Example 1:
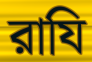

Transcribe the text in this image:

রাযি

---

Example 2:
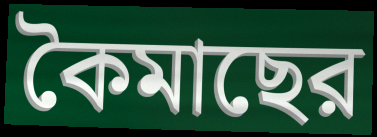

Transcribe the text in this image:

কৈমাছের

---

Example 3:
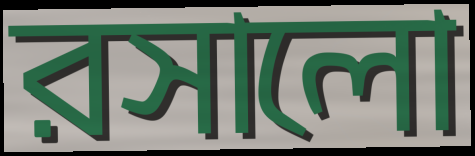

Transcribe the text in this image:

রসালো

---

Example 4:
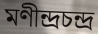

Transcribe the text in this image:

মণীন্দ্রচন্দ্র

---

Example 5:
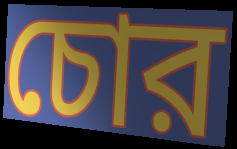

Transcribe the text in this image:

চোর